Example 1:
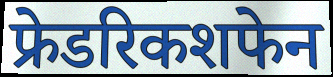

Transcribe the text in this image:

फ्रेडरिकशफेन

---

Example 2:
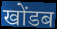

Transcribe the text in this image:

खोंडब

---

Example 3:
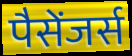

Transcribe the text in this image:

पैसेंजर्स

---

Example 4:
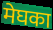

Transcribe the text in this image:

मेघका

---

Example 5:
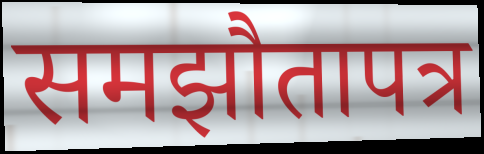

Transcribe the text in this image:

समझौतापत्र